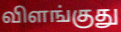
விளங்குது